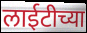
लाईटीच्या